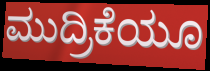
ಮುದ್ರಿಕೆಯೂ